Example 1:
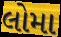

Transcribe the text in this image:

લોમા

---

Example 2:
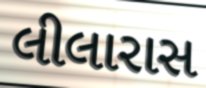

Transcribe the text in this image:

લીલારાસ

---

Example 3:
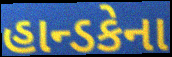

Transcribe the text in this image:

હાન્ડકેના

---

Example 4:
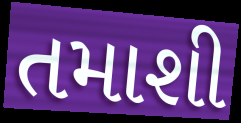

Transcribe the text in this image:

તમાશી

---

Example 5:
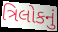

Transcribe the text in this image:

ત્રિલોકનું